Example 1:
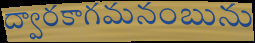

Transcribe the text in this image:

ద్వారకాగమనంబును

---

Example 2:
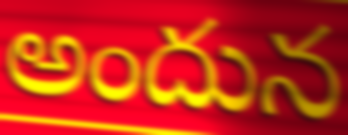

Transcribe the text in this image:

అందున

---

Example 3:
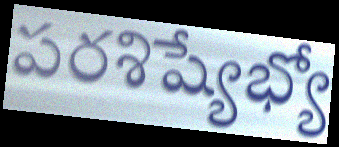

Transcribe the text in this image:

పరశిష్యేభ్యో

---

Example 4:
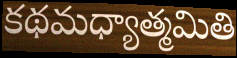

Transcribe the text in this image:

కథమధ్యాత్మమితి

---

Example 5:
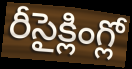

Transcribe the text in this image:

రీసైక్లింగ్లో